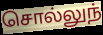
சொல்லுந்